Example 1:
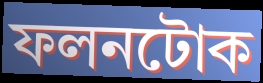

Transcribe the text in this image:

ফলনটোক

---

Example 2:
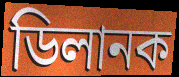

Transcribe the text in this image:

ডিলানক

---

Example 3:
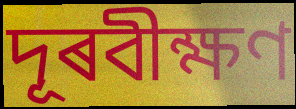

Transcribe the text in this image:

দূৰবীক্ষণ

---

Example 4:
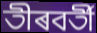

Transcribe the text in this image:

তীৰবৰ্তী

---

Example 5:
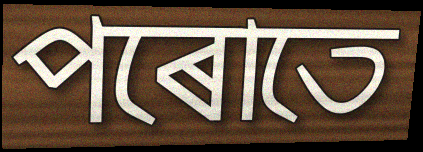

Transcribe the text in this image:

পৰোতে